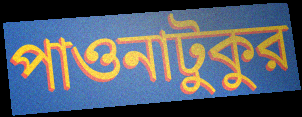
পাওনাটুকুর